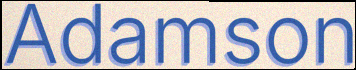
Adamson